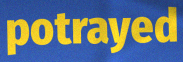
potrayed